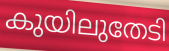
കുയിലുതേടി